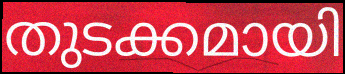
തുടക്കമായി